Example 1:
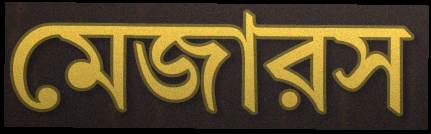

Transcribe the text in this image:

মেজারস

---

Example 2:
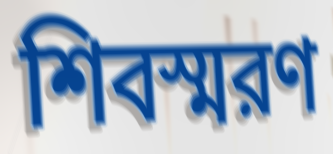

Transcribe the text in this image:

শিবস্মরণ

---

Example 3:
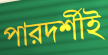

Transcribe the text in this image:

পারদর্শীই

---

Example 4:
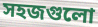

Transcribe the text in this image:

সহজগুলো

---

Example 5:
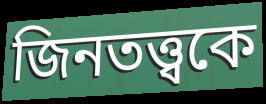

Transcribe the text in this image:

জিনতত্ত্বকে